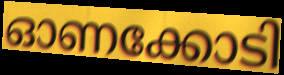
ഓണക്കോടി